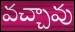
వచ్చావు